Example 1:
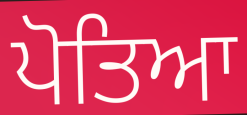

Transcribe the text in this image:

ਪੋਤਿਆ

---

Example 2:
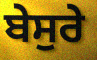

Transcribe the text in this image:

ਬੇਸੁਰੇ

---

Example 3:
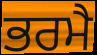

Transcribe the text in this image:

ਭਰਮੈ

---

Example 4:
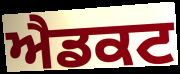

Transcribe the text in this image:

ਐਡਕਟ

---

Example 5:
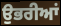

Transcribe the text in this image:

ਉਭਰੀਆਂ